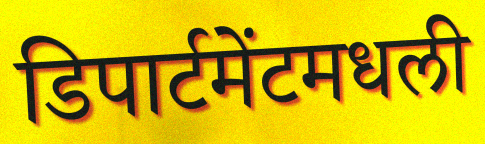
डिपार्टमेंटमधली